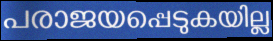
പരാജയപ്പെടുകയില്ല